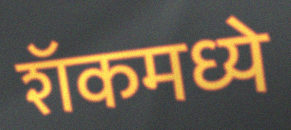
शॅकमध्ये